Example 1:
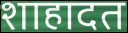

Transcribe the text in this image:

शाहादत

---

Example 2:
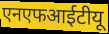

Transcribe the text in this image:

एनएफआईटीयू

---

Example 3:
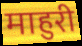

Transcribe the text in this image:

माहुरी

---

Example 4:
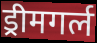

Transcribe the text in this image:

ड्रीमगर्ल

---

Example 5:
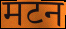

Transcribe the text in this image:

मटन